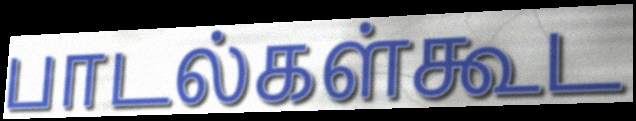
பாடல்கள்கூட